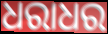
ଧରାଧର